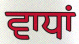
ਵਾਧਾਂ